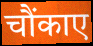
चौंकाए